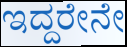
ಇದ್ದರೇನೇ